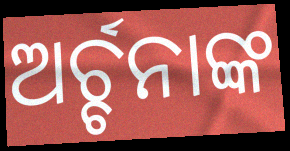
ଅର୍ଚ୍ଚନାଙ୍କ